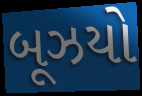
બૂઝયો